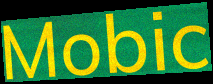
Mobic